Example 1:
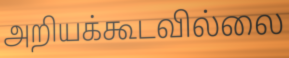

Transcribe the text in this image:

அறியக்கூடவில்லை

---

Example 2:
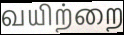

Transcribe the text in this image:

வயிற்றை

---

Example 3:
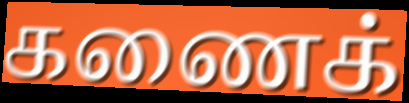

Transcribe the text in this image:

கணைக்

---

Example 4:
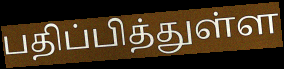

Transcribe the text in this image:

பதிப்பித்துள்ள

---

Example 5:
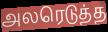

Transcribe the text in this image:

அலரெடுத்த